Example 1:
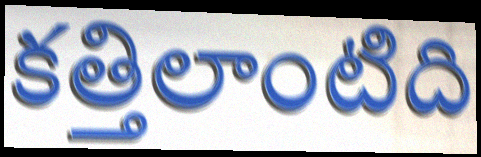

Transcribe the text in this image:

కత్తిలాంటిది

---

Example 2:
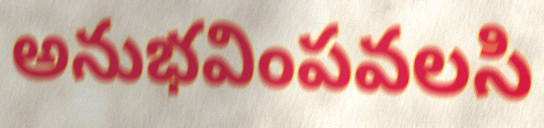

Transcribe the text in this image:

అనుభవింపవలసి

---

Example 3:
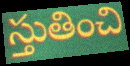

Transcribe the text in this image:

స్తుతించి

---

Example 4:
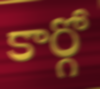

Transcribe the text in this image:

కార్గో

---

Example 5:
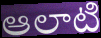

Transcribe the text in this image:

ఆలాటి